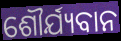
ଶୌର୍ଯ୍ୟବାନ